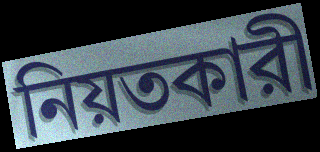
নিয়তকারী